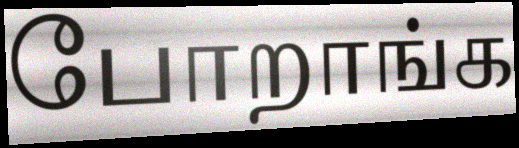
போறாங்க